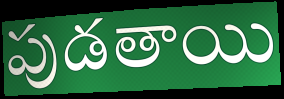
పుడతాయి